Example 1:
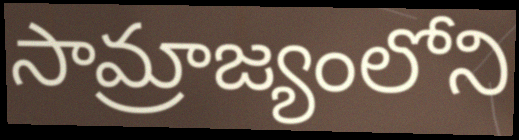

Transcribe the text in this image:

సామ్రాజ్యంలోని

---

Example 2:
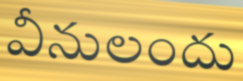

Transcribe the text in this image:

వీనులందు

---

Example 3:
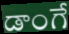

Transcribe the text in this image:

డాంగే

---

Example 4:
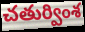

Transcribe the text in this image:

చతుర్వింశ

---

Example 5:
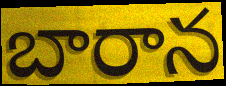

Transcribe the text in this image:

బారాన